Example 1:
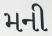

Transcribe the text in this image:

મની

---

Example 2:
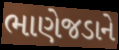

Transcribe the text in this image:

ભાણેજડાને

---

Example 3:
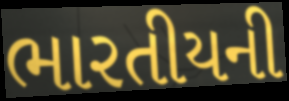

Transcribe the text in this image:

ભારતીયની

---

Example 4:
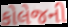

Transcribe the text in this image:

કોલેજની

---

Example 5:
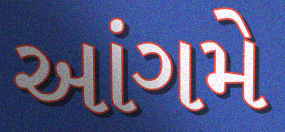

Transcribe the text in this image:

આંગમે